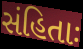
સંહિતાઃ